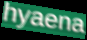
hyaena